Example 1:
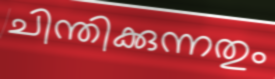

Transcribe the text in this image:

ചിന്തിക്കുന്നതും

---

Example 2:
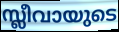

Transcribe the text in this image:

സ്ലീവായുടെ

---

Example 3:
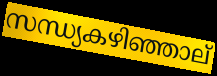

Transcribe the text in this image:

സന്ധ്യകഴിഞ്ഞാല്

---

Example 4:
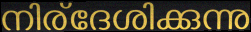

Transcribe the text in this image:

നിര്ദേശിക്കുന്നു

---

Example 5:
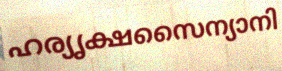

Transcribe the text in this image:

ഹര്യൃക്ഷസൈന്യാനി